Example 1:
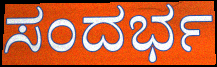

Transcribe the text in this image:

ಸಂದರ್ಭ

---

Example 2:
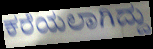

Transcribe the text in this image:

ಕರೆಯಲಾಗಿದ್ದು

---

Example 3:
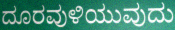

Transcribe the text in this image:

ದೂರವುಳಿಯುವುದು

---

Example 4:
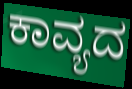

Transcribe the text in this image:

ಕಾವ್ಯದ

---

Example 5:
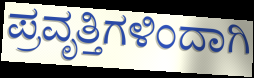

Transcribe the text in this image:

ಪ್ರವೃತ್ತಿಗಳಿಂದಾಗಿ